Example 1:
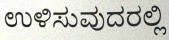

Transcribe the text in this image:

ಉಳಿಸುವುದರಲ್ಲಿ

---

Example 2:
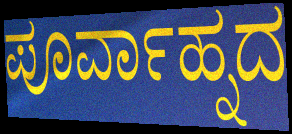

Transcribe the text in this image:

ಪೂರ್ವಾಹ್ನದ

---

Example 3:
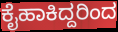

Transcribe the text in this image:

ಕೈಹಾಕಿದ್ದರಿಂದ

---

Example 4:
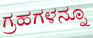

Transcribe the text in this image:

ಗ್ರಹಗಳನ್ನೂ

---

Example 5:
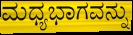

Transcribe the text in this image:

ಮಧ್ಯಭಾಗವನ್ನು